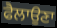
ਫੈਲਾਉਣਾ